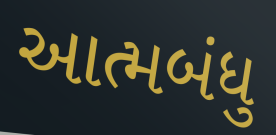
આત્મબંધુ